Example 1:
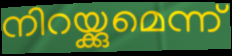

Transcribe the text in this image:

നിറയ്ക്കുമെന്ന്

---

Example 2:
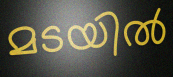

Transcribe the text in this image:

മടയിൽ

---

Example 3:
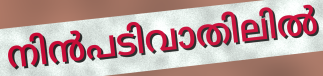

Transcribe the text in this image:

നിൻപടിവാതിലിൽ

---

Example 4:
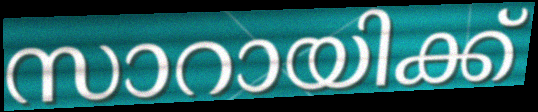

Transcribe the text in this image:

സാറായിക്ക്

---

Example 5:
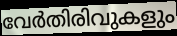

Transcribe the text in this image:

വേർതിരിവുകളും